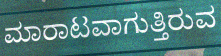
ಮಾರಾಟವಾಗುತ್ತಿರುವ